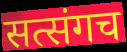
सत्संगच